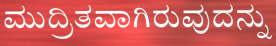
ಮುದ್ರಿತವಾಗಿರುವುದನ್ನು